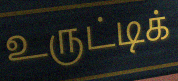
உருட்டிக்